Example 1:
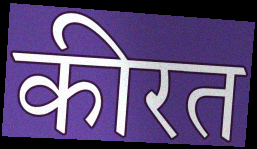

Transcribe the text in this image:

कीरत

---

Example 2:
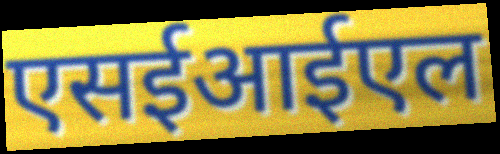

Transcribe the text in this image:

एसईआईएल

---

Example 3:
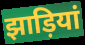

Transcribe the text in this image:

झाड़ियां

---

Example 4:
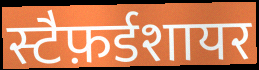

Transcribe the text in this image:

स्टैफ़र्डशायर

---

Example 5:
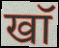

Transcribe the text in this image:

खॉ